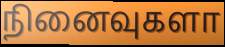
நினைவுகளா